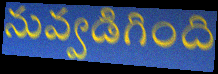
నువ్వడిగింది